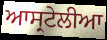
ਆਸ੍ਰਟੇਲੀਆ